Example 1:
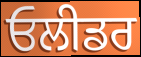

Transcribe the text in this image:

ਓਲੀਡਰ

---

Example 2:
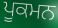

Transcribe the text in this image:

ਪੂਕਮਨ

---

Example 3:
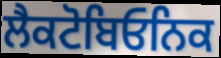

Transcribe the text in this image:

ਲੈਕਟੋਬਿਓਨਿਕ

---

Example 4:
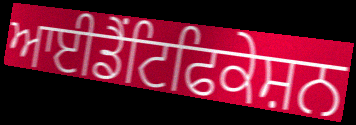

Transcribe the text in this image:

ਆਈਡੈਂਟਿਫਿਕੇਸ਼ਨ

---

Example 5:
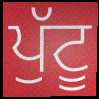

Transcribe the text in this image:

ਪੁੱਟੂ